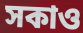
সকাও